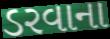
ડરવાના